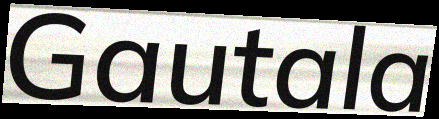
Gautala